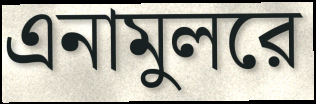
এনামুলরে